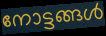
നോട്ടങ്ങൾ